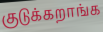
குடுக்கறாங்க